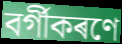
বৰ্গীকৰণে